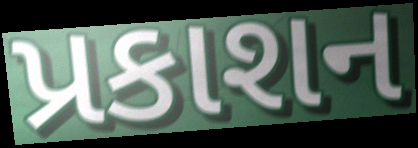
પ્રકાશન